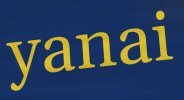
yanai